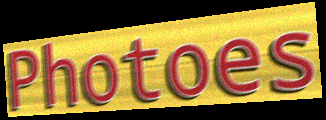
Photoes